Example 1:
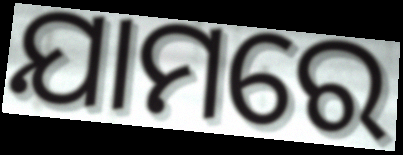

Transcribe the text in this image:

ଯାମରେ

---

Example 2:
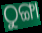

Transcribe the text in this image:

ଠୁଙ୍ଗା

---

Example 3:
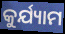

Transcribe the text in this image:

କୁର୍ଯ୍ୟାମ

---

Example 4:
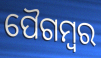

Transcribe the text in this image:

ପୈଗମ୍ବର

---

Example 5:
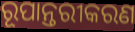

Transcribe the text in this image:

ରୂପାନ୍ତରୀକରଣ